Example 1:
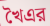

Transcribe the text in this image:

খৈএর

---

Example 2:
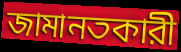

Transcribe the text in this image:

জামানতকারী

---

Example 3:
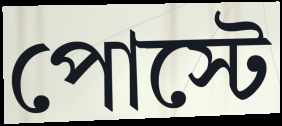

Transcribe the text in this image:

পোস্টে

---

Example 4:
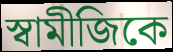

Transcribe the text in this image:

স্বামীজিকে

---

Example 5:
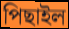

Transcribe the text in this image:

পিছাইল